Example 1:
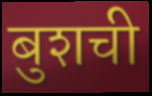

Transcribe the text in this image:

बुशची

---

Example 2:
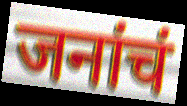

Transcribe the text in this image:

जनांचं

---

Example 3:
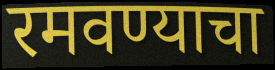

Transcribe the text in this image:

रमवण्याचा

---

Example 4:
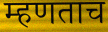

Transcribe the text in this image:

म्हणताच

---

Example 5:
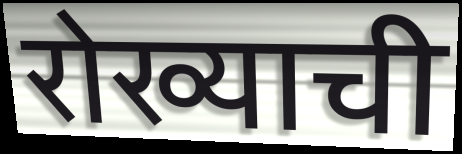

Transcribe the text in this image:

रोख्याची